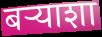
बऱ्याशा